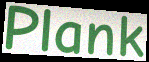
Plank